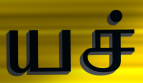
யச்